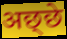
अछ्छे